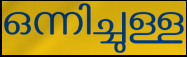
ഒന്നിച്ചുള്ള